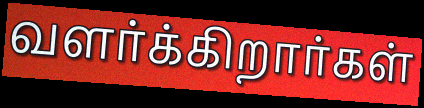
வளர்க்கிறார்கள்